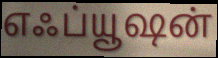
எஃப்யூஷன்